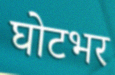
घोटभर